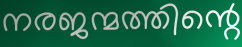
നരജന്മത്തിന്റെ